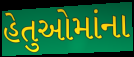
હેતુઓમાંના